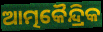
ଆତ୍ମକୈନ୍ଦ୍ରିକ